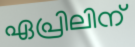
ഏപ്രിലിന്